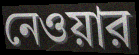
নেওয়ার